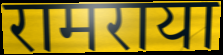
रामराया